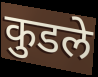
कुडले